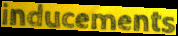
inducements